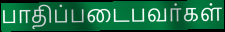
பாதிப்படைபவர்கள்